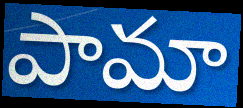
పామా